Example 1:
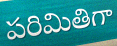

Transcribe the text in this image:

పరిమితిగా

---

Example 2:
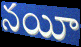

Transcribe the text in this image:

నయీ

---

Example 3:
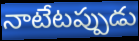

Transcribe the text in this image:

నాటేటప్పుడు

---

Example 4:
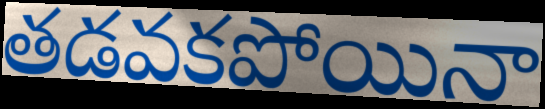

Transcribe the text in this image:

తడవకపోయినా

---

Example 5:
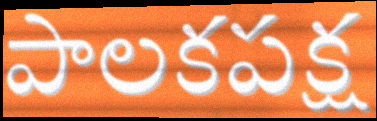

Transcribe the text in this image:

పాలకపక్ష